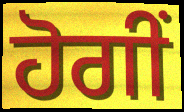
ਹੋਗੀਂ